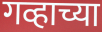
गव्हाच्या